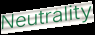
Neutrality